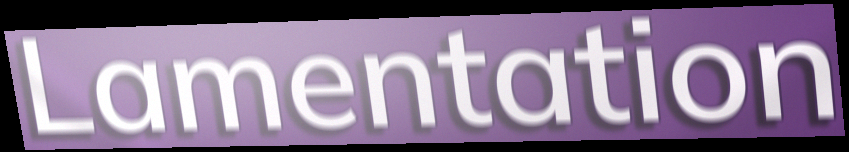
Lamentation